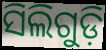
ସିଲିଗୁଡ଼ି